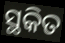
ସ୍ଥକିତ